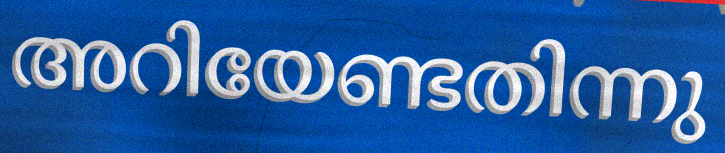
അറിയേണ്ടതിന്നു